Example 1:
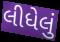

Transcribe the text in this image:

લીધેલું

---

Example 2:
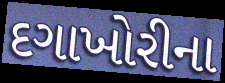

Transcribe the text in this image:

દગાખોરીના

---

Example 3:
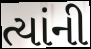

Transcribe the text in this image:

ત્યાંની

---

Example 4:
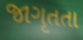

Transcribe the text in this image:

જાગૃતતા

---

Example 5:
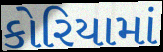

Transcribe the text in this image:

કોરિયામાં